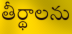
తీర్థాలను